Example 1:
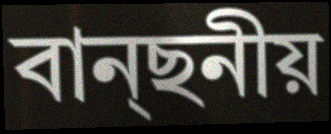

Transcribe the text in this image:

বান্ছনীয়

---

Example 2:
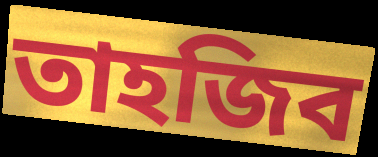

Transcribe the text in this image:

তাহজিব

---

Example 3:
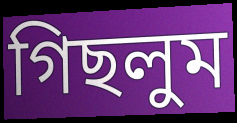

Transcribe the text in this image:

গিছলুম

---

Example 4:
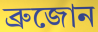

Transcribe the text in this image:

ব্রুজোন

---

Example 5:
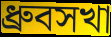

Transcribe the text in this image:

ধ্রুবসখা